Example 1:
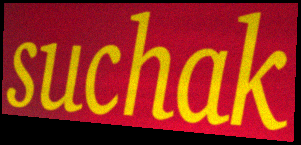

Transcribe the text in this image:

suchak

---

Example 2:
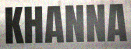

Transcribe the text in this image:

KHANNA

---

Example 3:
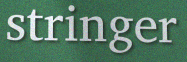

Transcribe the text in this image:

stringer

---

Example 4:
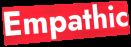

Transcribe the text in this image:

Empathic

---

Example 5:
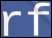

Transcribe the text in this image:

rf